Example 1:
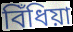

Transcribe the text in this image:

বিঁধিয়া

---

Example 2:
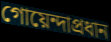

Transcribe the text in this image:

গোয়েন্দাপ্রধান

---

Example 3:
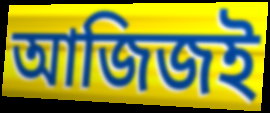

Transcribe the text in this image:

আজিজই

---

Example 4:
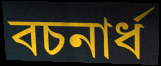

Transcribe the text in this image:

বচনার্ধ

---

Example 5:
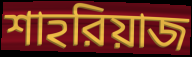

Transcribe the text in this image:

শাহরিয়াজ